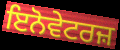
ਇਨੋਵੇਟਰਜ਼